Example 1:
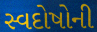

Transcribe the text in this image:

સ્વદોષોની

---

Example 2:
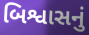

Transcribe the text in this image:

બિશ્વાસનું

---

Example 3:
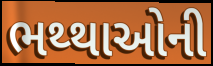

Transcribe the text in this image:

ભથ્થાઓની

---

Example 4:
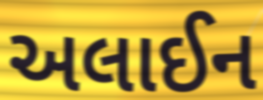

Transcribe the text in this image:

અલાઈન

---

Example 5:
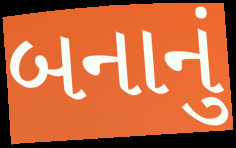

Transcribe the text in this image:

બનાનું